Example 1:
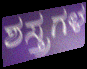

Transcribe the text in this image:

ಶಸ್ತ್ರಗಳ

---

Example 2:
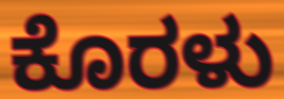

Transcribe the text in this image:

ಕೊರಳು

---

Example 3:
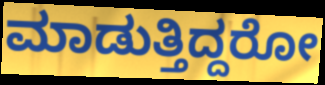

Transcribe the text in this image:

ಮಾಡುತ್ತಿದ್ದರೋ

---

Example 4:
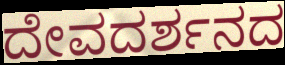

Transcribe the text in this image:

ದೇವದರ್ಶನದ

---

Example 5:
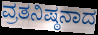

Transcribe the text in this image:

ವ್ರತನಿಷ್ಠನಾದ